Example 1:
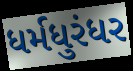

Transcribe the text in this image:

ધર્મધુરંધર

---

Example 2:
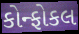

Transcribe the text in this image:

કોન્ફોકલ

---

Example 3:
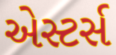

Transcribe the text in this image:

એસ્ટર્સ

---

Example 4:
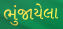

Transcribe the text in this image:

ભુંજાયેલા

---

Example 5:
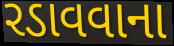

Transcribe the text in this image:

રડાવવાના